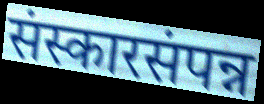
संस्कारसंपन्न